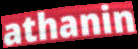
athanin